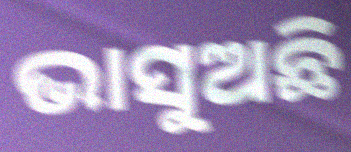
ଭାସୁଅଛି